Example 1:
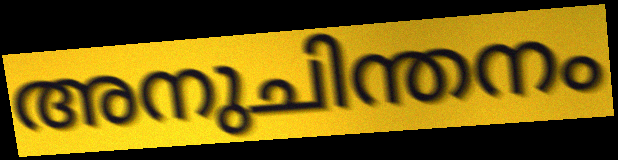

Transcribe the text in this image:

അനുചിന്തനം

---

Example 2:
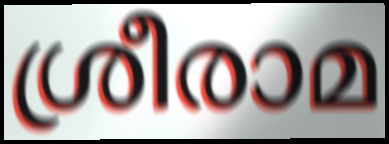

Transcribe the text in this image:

ശ്രീരാമ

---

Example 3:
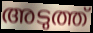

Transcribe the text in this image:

അടുത്ത്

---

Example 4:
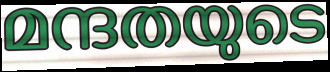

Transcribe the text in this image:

മന്ദതയുടെ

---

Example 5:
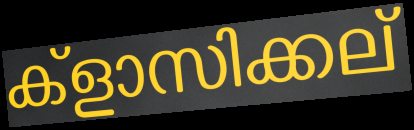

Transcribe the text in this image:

ക്ളാസിക്കല്